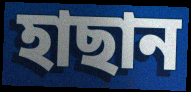
হাছান